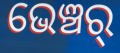
ଭେଞ୍ଚର୍